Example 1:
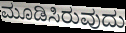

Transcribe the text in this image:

ಮೂಡಿಸಿರುವುದು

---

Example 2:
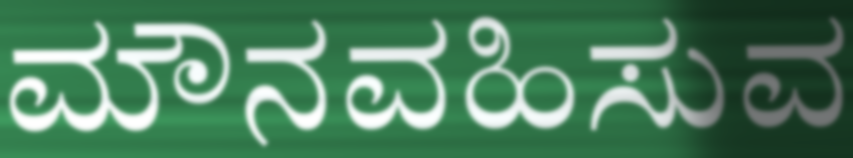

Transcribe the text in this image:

ಮೌನವಹಿಸುವ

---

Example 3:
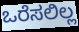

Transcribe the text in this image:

ಒರೆಸಲಿಲ್ಲ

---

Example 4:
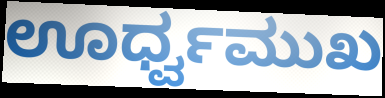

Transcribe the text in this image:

ಊರ್ಧ್ವಮುಖ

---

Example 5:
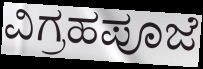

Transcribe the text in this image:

ವಿಗ್ರಹಪೂಜೆ